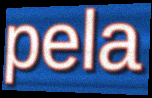
pela